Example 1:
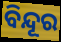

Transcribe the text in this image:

ବିନ୍ଦୂର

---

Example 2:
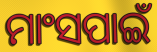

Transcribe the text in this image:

ମାଂସପାଇଁ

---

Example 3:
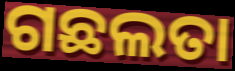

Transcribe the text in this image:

ଗଛଲତା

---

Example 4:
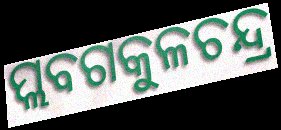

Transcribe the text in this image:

ପ୍ଲବଗକୁଳଚନ୍ଦ୍ର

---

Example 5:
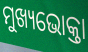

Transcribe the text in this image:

ମୁଖ୍ୟଭୋକ୍ତା